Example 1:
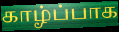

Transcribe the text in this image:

காழ்ப்பாக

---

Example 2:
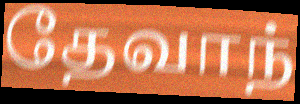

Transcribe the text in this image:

தேவாந்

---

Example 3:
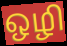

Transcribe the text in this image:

ஒழி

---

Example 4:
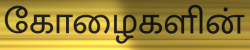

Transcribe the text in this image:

கோழைகளின்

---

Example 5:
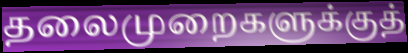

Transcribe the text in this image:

தலைமுறைகளுக்குத்